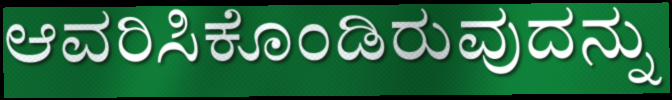
ಆವರಿಸಿಕೊಂಡಿರುವುದನ್ನು